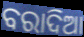
ବରାଦିଆ